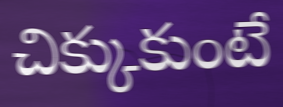
చిక్కుకుంటే